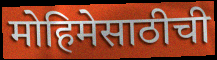
मोहिमेसाठीची